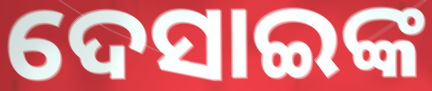
ଦେସାଇଙ୍କ